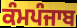
ਕੰਮਪੰਜਾਬ